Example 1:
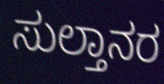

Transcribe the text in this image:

ಸುಲ್ತಾನರ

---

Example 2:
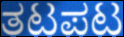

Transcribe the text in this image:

ತಟಪಟ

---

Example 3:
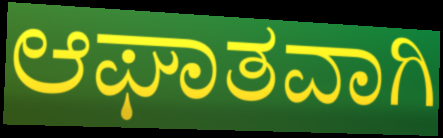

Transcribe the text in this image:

ಆಘಾತವಾಗಿ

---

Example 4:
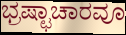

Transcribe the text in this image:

ಭ್ರಷ್ಟಾಚಾರವೂ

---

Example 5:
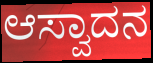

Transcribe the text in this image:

ಆಸ್ವಾದನ